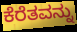
ಕೆರೆತವನ್ನು